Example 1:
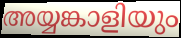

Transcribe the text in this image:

അയ്യങ്കാളിയും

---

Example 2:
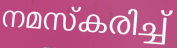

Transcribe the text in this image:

നമസ്‌കരിച്ച്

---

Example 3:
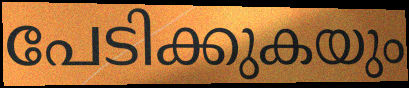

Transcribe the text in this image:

പേടിക്കുകയും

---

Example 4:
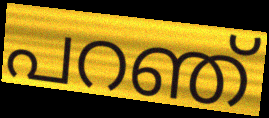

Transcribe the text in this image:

പറഞ്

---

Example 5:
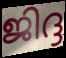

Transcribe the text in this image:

ജിദ്ദ